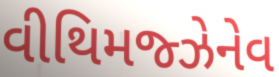
વીથિમજ્ઝેનેવ